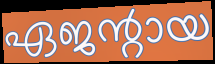
ഏജന്റായ